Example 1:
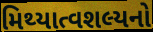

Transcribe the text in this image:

મિથ્યાત્વશલ્યનો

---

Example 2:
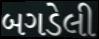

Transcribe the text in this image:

બગડેલી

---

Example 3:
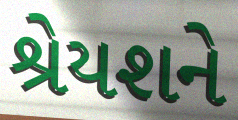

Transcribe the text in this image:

શ્રેયશને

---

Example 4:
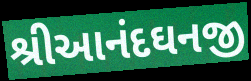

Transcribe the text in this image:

શ્રીઆનંદઘનજી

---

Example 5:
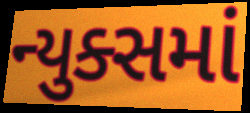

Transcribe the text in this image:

ન્યુક્સમાં